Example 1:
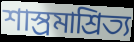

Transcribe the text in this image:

শাস্ত্রমাশ্রিত্য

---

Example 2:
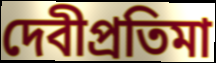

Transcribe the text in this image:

দেবীপ্রতিমা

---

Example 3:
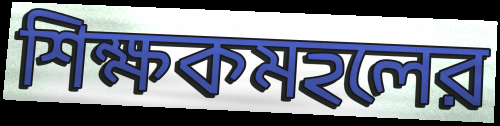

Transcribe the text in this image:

শিক্ষকমহলের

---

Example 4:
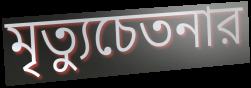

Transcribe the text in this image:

মৃত্যুচেতনার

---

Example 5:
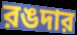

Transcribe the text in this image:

রঙদার